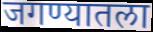
जगण्यातला